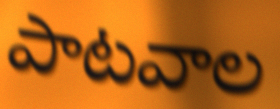
పాటవాల